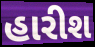
હારીશ